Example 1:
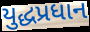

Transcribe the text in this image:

યુદ્ધપ્રધાન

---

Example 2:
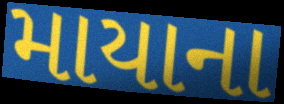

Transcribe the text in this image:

માયાના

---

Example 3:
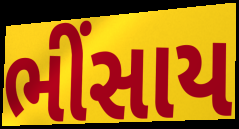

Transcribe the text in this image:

ભીંસાય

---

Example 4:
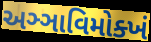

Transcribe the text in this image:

અઞ્ઞાવિમોક્ખં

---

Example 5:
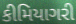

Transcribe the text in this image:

કીમિયાગરી